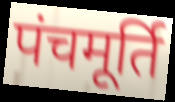
पंचमूर्ति